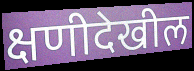
क्षणीदेखील